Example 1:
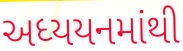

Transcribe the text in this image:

અધ્યયનમાંથી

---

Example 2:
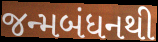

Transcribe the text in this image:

જન્મબંધનથી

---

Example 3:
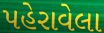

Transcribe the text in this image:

પહેરાવેલા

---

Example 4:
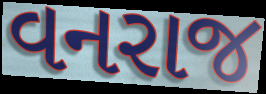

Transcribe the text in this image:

વનરાજ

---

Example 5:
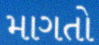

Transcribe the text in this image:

માગતો